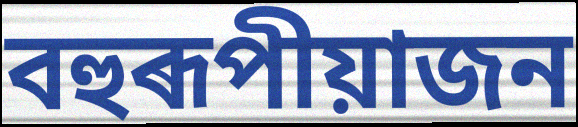
বহুৰূপীয়াজন